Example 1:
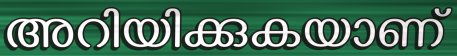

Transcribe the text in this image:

അറിയിക്കുകയാണ്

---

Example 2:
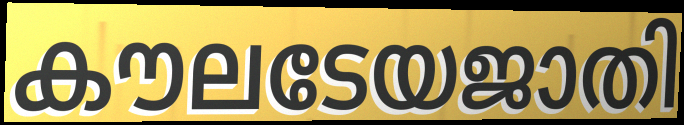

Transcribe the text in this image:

കൗലടേയജാതി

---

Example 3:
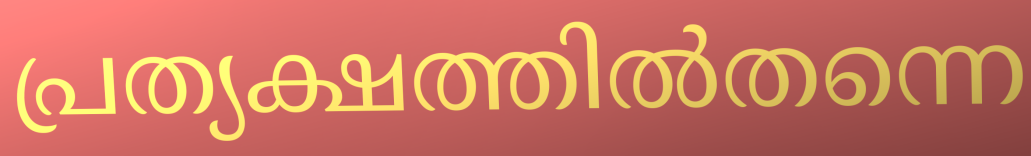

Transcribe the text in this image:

പ്രത്യക്ഷത്തിൽതന്നെ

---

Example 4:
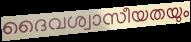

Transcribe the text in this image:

ദൈവശ്വാസീയതയും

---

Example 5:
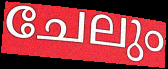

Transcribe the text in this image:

ചേലും